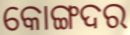
କୋଙ୍ଗଦର